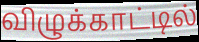
விழுக்காட்டில்